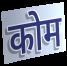
कोम